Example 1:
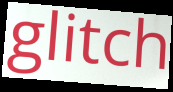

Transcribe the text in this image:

glitch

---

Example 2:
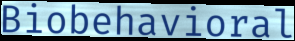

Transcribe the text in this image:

Biobehavioral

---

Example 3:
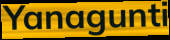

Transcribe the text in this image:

Yanagunti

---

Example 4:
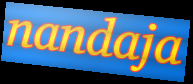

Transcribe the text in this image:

nandaja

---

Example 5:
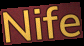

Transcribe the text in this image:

Nife